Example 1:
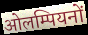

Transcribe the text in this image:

ओलम्पियनों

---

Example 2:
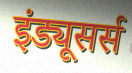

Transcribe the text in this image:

इंड्यूसर्स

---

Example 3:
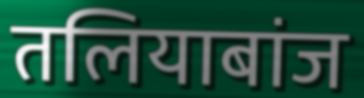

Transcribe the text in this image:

तलियाबांज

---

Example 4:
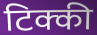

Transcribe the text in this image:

टिक्‍की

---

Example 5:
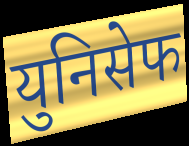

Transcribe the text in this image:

युनिसेफ